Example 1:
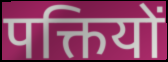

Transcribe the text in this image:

पक्तियों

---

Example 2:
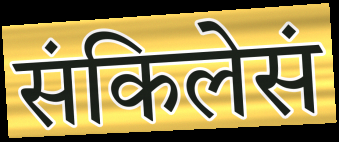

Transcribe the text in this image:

संकिलेसं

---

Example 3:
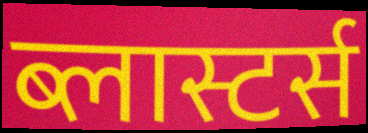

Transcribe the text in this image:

ब्लास्टर्स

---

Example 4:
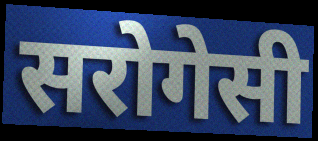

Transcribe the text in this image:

सरोगेसी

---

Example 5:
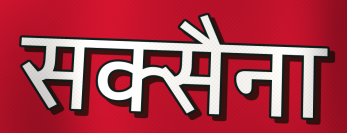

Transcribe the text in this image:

सक्सैना